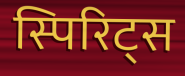
स्पिरिट्स